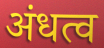
अंधत्व